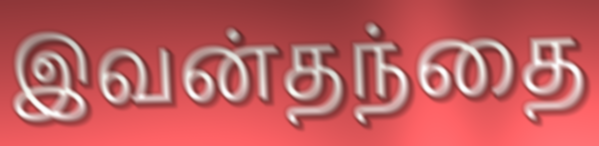
இவன்தந்தை